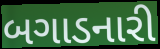
બગાડનારી